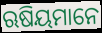
ଋଷିୟମାନେ